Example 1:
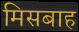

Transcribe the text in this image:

मिसबाह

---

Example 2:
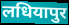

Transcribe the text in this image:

लधियापुर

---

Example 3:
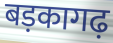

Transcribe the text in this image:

बड़कागढ़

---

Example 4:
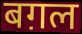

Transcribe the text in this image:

बग़ल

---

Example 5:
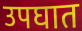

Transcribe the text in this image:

उपघात